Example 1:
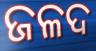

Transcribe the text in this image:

ଜଳଦ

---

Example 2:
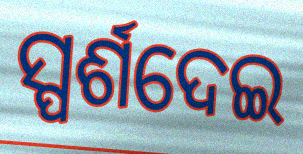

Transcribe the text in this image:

ସ୍ପର୍ଶଦେଇ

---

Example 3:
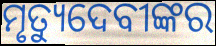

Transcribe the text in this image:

ମୃତ୍ୟୁଦେବୀଙ୍କର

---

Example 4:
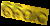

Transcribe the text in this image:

ତିନିପାଦ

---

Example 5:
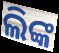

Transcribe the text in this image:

ଲିଙ୍କ